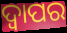
ଦ୍ୱାପର